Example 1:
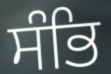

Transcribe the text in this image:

ਸੰਭਿ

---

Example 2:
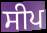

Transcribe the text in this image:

ਸੀਪ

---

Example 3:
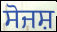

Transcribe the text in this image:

ਸੋਜਸ਼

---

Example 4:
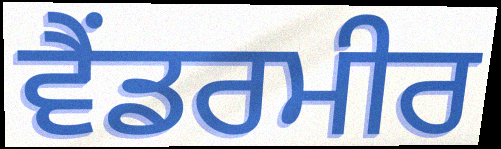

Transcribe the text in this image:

ਵੈਂਡਰਮੀਰ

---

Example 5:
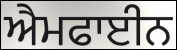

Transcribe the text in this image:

ਐਮਫਾਈਨ